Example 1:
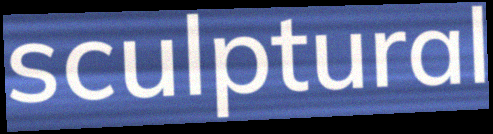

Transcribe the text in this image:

sculptural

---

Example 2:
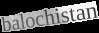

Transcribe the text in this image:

balochistan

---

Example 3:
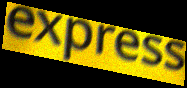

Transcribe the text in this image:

express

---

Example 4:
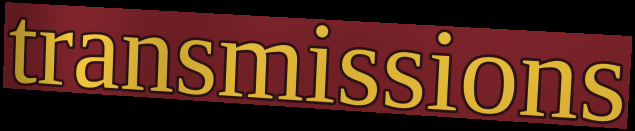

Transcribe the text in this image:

transmissions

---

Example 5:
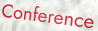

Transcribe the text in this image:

Conference